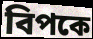
বিপকে